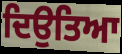
ਦਿਉਤਿਆ